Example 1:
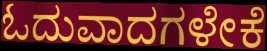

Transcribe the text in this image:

ಓದುವಾದಗಳೇಕೆ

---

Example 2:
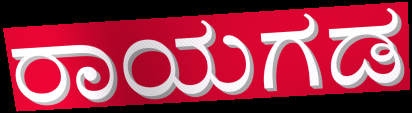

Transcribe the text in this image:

ರಾಯಗಡ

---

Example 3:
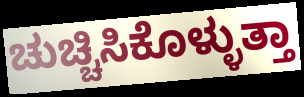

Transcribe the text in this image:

ಚುಚ್ಚಿಸಿಕೊಳ್ಳುತ್ತಾ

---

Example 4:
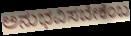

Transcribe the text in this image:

ಅನುಭವಿಸಬೇಕೆಂಬ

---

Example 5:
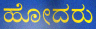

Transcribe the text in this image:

ಹೋದರು